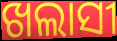
ଖଲାସୀ